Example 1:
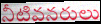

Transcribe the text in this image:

నీటివనరులు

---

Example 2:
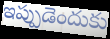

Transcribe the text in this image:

ఇప్పుడెందుకు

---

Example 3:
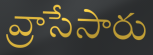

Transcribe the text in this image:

వ్రాసేసారు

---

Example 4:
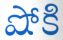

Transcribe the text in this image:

షోకి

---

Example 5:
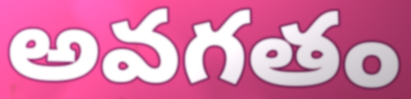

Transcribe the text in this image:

అవగతం